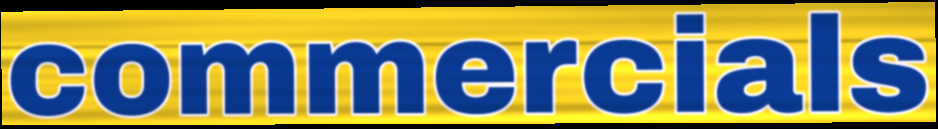
commercials